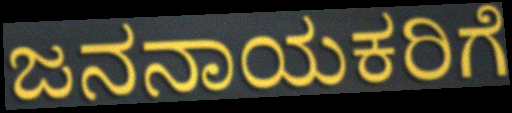
ಜನನಾಯಕರಿಗೆ